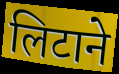
लिटाने